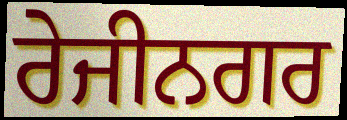
ਰੇਜੀਨਗਰ